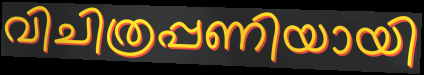
വിചിത്രപ്പണിയായി